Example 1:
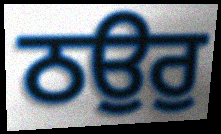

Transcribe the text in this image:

ਠਉਰੁ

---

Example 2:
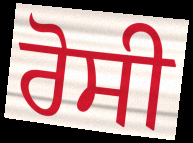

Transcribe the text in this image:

ਰੋਸੀ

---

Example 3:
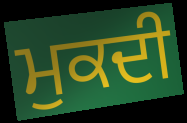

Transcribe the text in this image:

ਮੁਕਦੀ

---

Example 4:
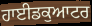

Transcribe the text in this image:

ਹਾਈਡਕੁਆਟਰ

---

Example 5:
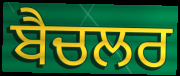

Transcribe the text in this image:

ਬੈਚਲਰ